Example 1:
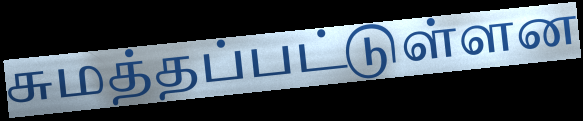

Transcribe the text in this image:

சுமத்தப்பட்டுள்ளன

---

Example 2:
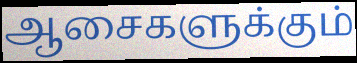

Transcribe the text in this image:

ஆசைகளுக்கும்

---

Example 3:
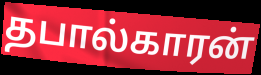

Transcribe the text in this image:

தபால்காரன்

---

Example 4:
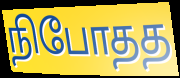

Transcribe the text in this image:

நிபோதத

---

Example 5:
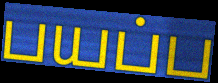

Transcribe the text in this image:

பயப்ப